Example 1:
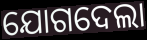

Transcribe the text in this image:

ଯୋଗଦେଲା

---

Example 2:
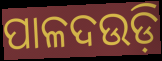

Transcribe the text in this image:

ପାଳଦଉଡ଼ି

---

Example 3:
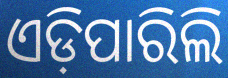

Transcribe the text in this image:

ଏଡ଼ିପାରିଲି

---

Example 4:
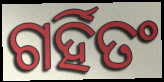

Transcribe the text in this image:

ଗର୍ହିତଂ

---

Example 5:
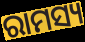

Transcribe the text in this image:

ରାମସ୍ୟ